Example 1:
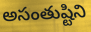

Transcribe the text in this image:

అసంతుష్టిని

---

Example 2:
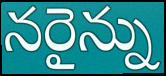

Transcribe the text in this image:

నరైన్ను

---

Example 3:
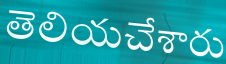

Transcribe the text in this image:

తెలియచేశారు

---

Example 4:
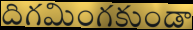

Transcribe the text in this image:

దిగమింగకుండా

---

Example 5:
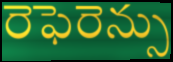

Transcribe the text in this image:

రెఫెరెన్సు